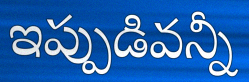
ఇప్పుడివన్నీ